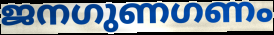
ജനഗുണഗണം